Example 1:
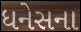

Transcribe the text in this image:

ધનેસના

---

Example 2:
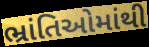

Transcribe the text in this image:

ભ્રાંતિઓમાંથી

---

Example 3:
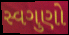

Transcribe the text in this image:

સ્વગુણો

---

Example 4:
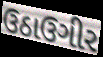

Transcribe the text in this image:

ઉઠાઉગીર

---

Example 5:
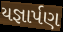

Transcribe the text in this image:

યજ્ઞાર્પણ